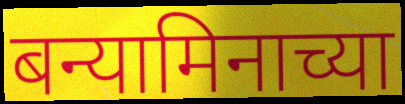
बन्यामिनाच्या